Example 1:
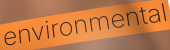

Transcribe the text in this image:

environmental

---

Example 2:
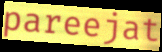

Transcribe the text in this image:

pareejat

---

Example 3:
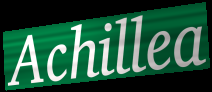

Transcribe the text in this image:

Achillea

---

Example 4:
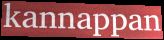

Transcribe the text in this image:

kannappan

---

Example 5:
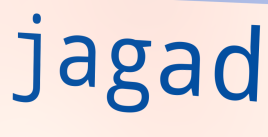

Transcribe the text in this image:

jagad